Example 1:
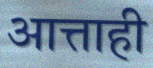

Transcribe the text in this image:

आत्ताही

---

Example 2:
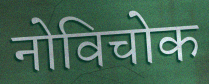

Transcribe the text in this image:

नोविचोक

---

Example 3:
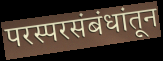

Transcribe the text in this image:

परस्परसंबंधांतून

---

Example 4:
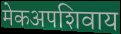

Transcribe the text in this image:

मेकअपशिवाय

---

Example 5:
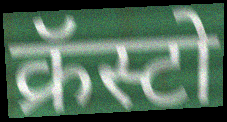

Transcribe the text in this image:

क्रॅस्टो